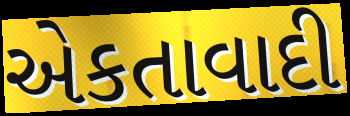
એકતાવાદી